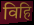
विहि